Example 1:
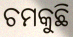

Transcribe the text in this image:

ଚମକୁଛି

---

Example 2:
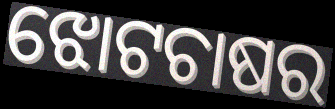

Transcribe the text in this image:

ଝୋଟଚାଷର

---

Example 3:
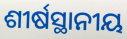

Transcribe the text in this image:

ଶୀର୍ଷସ୍ଥାନୀୟ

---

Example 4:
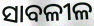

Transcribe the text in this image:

ସାବଳୀଳ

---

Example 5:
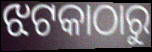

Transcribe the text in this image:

ଝଟକାଠାରୁ